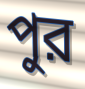
পুর